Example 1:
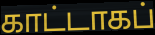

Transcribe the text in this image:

காட்டாகப்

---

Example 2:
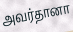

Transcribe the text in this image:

அவர்தானா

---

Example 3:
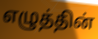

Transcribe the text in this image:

எழுத்தின்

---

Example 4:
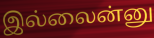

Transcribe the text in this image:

இல்லைன்னு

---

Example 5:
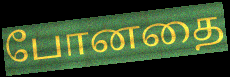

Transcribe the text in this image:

போனதை